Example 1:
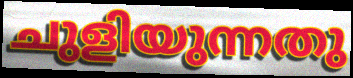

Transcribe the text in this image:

ചുളിയുന്നതു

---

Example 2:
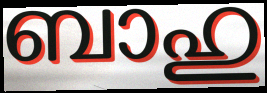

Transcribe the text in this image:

ബാഹു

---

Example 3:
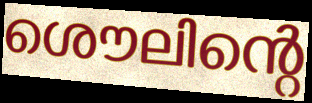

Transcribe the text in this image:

ശൌലിന്റെ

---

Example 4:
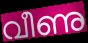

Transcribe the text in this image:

വീണു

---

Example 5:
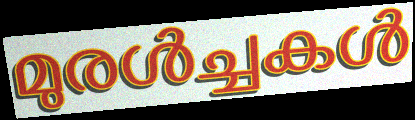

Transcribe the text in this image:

മുരൾച്ചകൾ